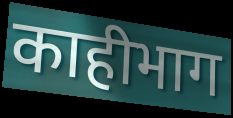
काहीभाग